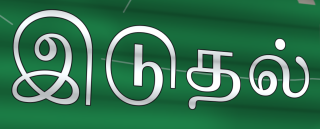
இடுதல்